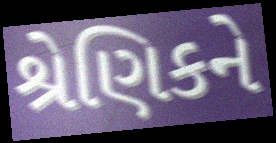
શ્રેણિકને